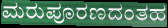
ಮರುಪೂರಣದಂತಹ